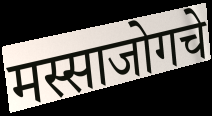
मस्साजोगचे